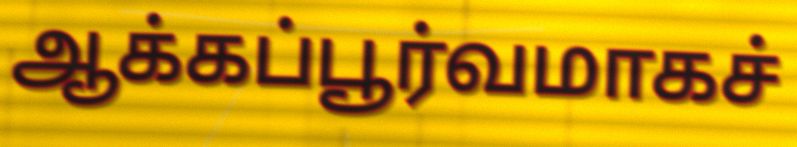
ஆக்கப்பூர்வமாகச்